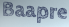
Baapre